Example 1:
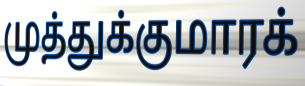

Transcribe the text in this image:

முத்துக்குமாரக்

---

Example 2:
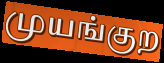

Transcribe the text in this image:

முயங்குற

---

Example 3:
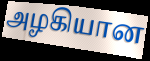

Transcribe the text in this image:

அழகியான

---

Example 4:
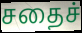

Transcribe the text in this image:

சதைச்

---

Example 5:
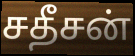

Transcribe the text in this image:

சதீசன்